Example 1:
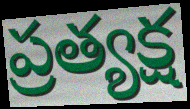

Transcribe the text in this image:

ప్రత్యక్ష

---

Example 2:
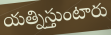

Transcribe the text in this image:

యత్నిస్తుంటారు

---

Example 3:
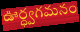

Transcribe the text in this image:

ఊర్ధ్వగమనం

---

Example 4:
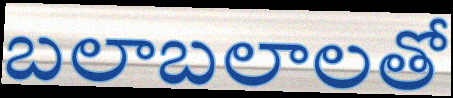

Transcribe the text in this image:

బలాబలాలతో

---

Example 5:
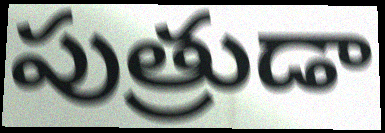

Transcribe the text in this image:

పుత్రుడా